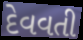
દેવવતી